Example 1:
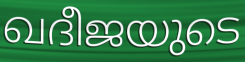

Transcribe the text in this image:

ഖദീജയുടെ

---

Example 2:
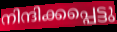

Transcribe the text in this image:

നിന്ദിക്കപ്പെട്ടു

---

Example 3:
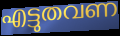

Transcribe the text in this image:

എട്ടുതവണ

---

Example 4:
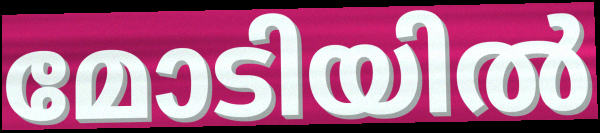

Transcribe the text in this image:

മോടിയിൽ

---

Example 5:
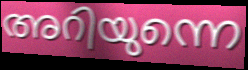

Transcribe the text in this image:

അറിയുന്നെ